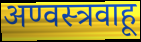
अण्वस्त्रवाहू